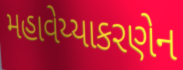
મહાવેય્યાકરણેન